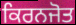
ਕਿਰਨਜੋਤ